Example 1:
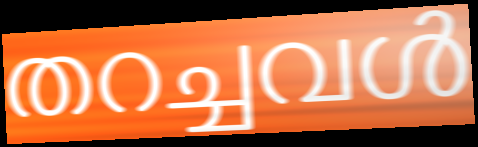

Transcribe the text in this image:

തറച്ചവൾ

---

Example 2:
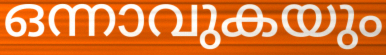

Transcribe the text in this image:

ഒന്നാവുകയും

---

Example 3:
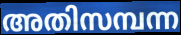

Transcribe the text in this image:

അതിസമ്പന്ന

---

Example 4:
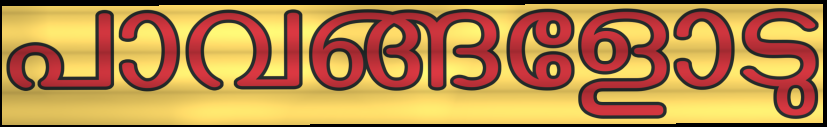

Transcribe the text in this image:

പാവങ്ങളോടു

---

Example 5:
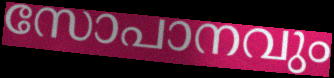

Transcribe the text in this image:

സോപാനവും